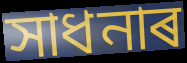
সাধনাৰ